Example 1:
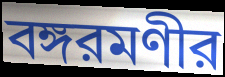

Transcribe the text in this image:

বঙ্গরমণীর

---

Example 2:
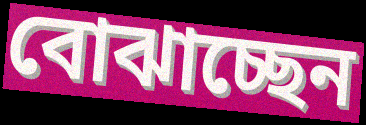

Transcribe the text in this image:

বোঝাচ্ছেন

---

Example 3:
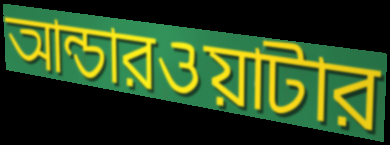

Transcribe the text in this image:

আন্ডারওয়াটার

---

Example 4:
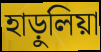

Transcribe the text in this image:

হাড়ুলিয়া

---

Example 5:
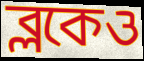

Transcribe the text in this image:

ব্লকেও